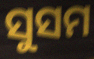
ସୁସମ